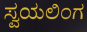
ಸ್ವಯಲಿಂಗ